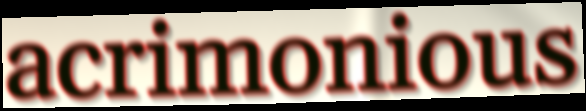
acrimonious